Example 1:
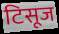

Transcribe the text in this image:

टिसूज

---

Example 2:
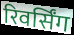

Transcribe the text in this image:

रिवर्सिंग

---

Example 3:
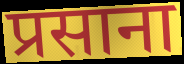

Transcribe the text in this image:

प्रसाना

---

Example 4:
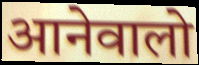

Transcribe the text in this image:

आनेवालो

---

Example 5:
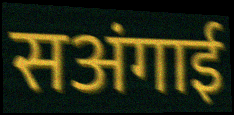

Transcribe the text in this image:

सअंगाई